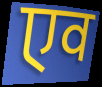
एव